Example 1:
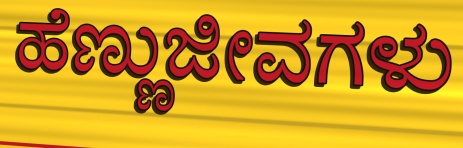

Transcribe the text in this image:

ಹೆಣ್ಣುಜೀವಗಳು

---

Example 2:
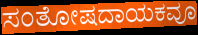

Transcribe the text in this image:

ಸಂತೋಷದಾಯಕವೂ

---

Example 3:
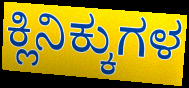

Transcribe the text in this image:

ಕ್ಲಿನಿಕ್ಕುಗಳ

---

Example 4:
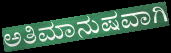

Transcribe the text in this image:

ಅತಿಮಾನುಷವಾಗಿ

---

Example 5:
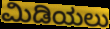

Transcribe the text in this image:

ಮಿಡಿಯಲು